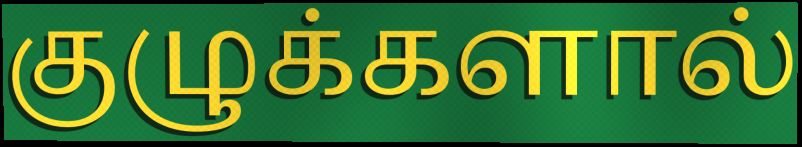
குழுக்களால்